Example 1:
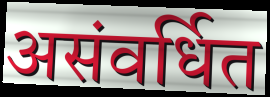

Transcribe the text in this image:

असंवर्धित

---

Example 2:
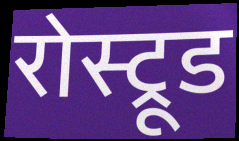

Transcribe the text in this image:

रोस्ट्रूड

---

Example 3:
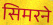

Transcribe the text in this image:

सिमरने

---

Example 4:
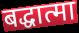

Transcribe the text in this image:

बद्धात्मा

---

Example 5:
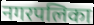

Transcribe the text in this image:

नगरपलिका